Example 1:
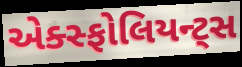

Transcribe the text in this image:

એક્સ્ફોલિયન્ટ્સ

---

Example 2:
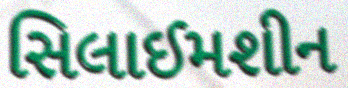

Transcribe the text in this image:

સિલાઈમશીન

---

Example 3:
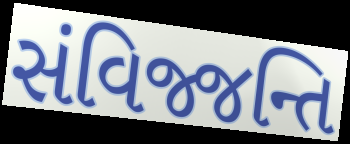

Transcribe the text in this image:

સંવિજ્જન્તિ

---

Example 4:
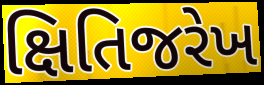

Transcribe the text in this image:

ક્ષિતિજરેખ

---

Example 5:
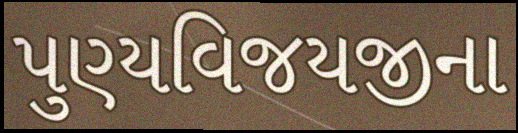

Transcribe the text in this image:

પુણ્યવિજયજીના